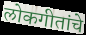
लोकगीतांचे